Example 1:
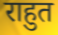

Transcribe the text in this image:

राहुत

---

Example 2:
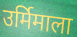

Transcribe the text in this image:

उर्मिमाला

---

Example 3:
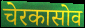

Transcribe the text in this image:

चेरकासोव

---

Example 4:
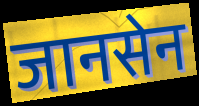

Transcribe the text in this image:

जानसेन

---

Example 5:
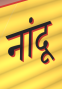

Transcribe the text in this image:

नांदू